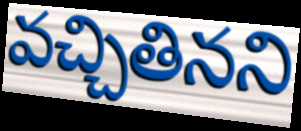
వచ్చితినని